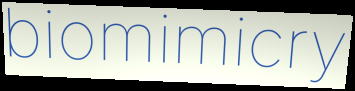
biomimicry